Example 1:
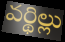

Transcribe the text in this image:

వర్థిల్లు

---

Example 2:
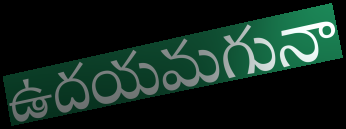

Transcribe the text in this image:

ఉదయమగునా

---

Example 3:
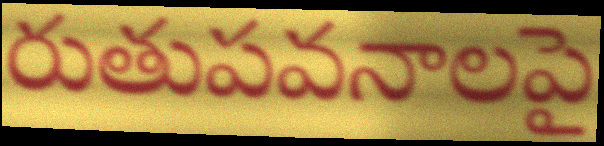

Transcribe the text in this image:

రుతుపవనాలపై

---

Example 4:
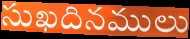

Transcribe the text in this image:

సుఖదినములు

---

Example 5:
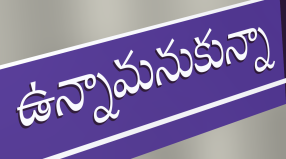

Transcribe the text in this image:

ఉన్నామనుకున్నా